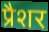
प्रैशर